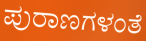
ಪುರಾಣಗಳಂತೆ